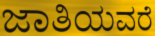
ಜಾತಿಯವರೆ